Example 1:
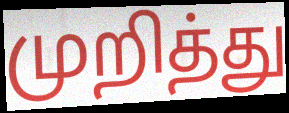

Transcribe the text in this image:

முறித்து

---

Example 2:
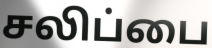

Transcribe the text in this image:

சலிப்பை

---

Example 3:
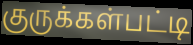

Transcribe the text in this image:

குருக்கள்பட்டி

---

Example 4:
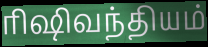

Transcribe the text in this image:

ரிஷிவந்தியம்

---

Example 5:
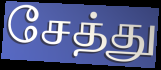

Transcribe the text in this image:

சேத்து